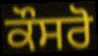
ਕੌਸਰੋ